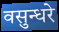
वसुन्धरे